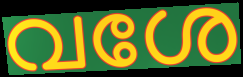
വശേ